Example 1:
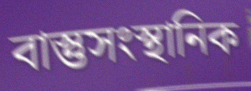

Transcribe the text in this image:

বাস্তুসংস্থানিক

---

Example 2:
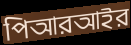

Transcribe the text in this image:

পিআরআইর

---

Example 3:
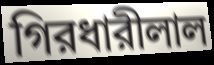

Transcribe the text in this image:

গিরধারীলাল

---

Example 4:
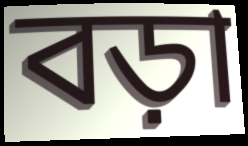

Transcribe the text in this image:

বড়া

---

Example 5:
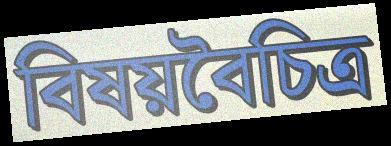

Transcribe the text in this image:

বিষয়বৈচিত্র